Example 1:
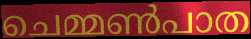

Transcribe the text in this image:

ചെമ്മൺപാത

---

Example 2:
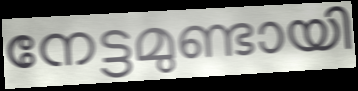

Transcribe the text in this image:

നേട്ടമുണ്ടായി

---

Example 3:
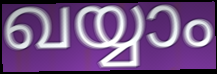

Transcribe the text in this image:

ഖയ്യാം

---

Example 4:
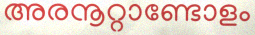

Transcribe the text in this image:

അരനൂറ്റാണ്ടോളം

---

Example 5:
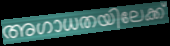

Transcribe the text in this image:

അഗാധതയിലേക്ക്